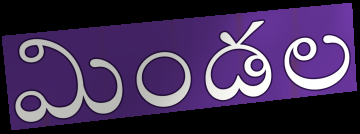
మిండల